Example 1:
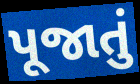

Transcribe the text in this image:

પૂજાતું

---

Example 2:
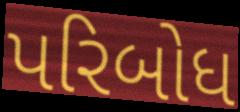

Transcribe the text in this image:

પરિબોધ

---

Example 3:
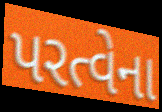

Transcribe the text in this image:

પરત્વેના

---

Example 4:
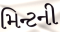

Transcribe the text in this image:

મિન્ટની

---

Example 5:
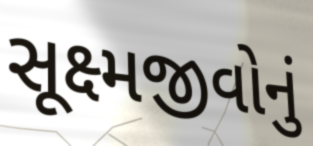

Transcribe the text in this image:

સૂક્ષ્મજીવોનું